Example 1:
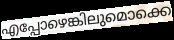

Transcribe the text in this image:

എപ്പോഴെങ്കിലുമൊക്കെ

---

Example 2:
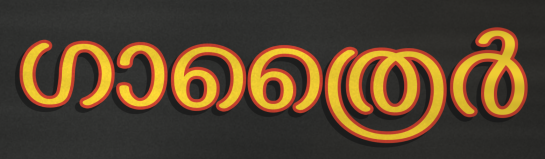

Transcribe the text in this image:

ഗാത്രൈർ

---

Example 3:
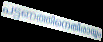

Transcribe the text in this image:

പട്ടണത്തിനെതിരായും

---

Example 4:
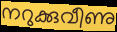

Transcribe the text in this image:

നറുക്കുവീണു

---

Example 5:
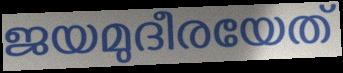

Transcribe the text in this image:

ജയമുദീരയേത്